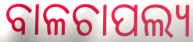
ବାଳଚାପଲ୍ୟ